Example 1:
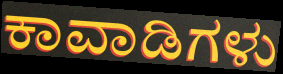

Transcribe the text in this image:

ಕಾವಾಡಿಗಳು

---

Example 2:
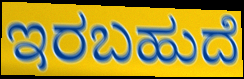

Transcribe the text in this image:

ಇರಬಹುದೆ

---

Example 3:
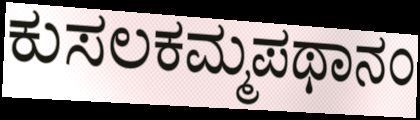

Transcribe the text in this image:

ಕುಸಲಕಮ್ಮಪಥಾನಂ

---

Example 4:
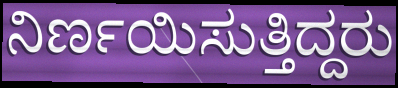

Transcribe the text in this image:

ನಿರ್ಣಯಿಸುತ್ತಿದ್ದರು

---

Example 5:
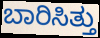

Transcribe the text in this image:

ಬಾರಿಸಿತ್ತು